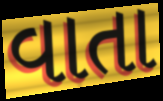
વાતા